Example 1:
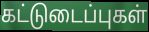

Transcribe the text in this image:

கட்டுடைப்புகள்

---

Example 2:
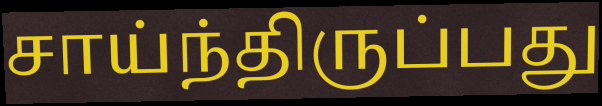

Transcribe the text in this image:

சாய்ந்திருப்பது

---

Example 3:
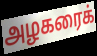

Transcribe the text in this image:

அழகரைக்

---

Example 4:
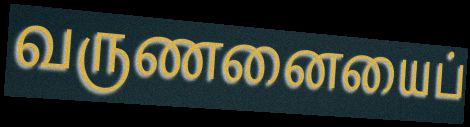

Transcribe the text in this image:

வருணனையைப்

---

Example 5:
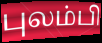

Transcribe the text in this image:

புலம்பி